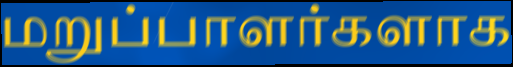
மறுப்பாளர்களாக